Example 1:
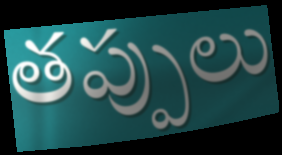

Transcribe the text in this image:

తప్పులు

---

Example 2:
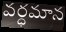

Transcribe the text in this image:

వర్ధమాన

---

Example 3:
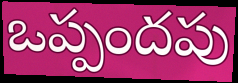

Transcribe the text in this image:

ఒప్పందపు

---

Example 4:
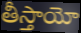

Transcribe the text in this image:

తీస్తాయో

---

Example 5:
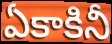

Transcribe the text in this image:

ఏకాకినీ